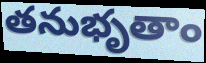
తనుభృతాం